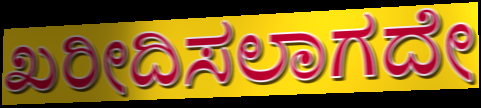
ಖರೀದಿಸಲಾಗದೇ